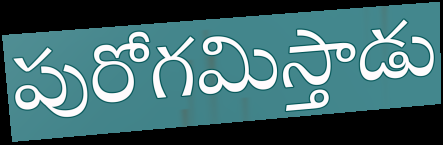
పురోగమిస్తాడు